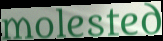
molested